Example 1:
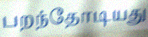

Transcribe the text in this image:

பறந்தோடியது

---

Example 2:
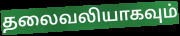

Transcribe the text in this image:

தலைவலியாகவும்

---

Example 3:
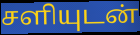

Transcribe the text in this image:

சளியுடன்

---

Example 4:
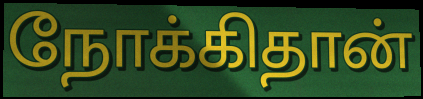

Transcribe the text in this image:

நோக்கிதான்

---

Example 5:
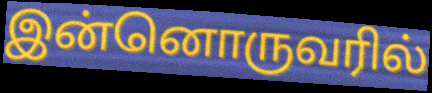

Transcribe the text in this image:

இன்னொருவரில்